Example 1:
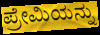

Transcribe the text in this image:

ಪ್ರೇಮಿಯನ್ನು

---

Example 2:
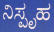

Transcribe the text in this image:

ನಿಸ್ಪೃಹ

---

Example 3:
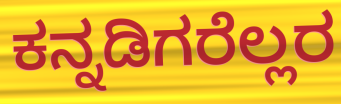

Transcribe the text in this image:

ಕನ್ನಡಿಗರೆಲ್ಲರ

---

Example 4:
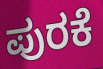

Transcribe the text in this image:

ಪುರಕೆ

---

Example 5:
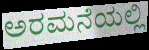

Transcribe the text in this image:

ಅರಮನೆಯಲ್ಲಿ